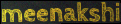
meenakshi